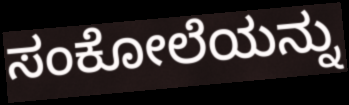
ಸಂಕೋಲೆಯನ್ನು